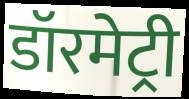
डॉरमेट्री